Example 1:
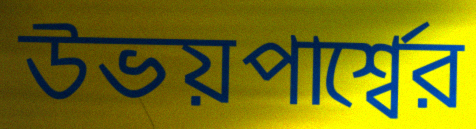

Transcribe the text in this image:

উভয়পার্শ্বের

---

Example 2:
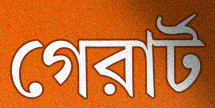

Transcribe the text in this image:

গেরার্ট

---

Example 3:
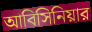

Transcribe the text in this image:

আবিসিনিয়ার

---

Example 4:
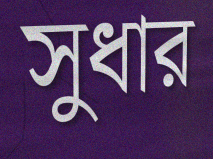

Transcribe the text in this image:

সুধার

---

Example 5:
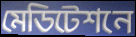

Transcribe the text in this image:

মেডিটেশনে